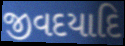
જીવદયાદિ